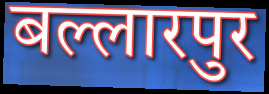
बल्लारपुर